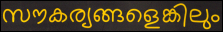
സൗകര്യങ്ങളെങ്കിലും